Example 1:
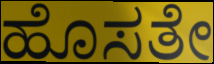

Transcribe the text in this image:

ಹೊಸತೇ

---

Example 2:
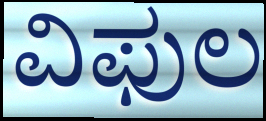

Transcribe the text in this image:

ವಿಫುಲ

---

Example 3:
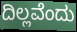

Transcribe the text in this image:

ದಿಲ್ಲವೆಂದು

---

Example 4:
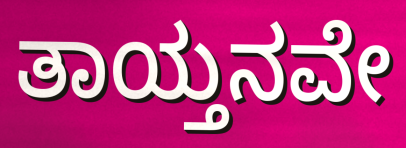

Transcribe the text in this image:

ತಾಯ್ತನವೇ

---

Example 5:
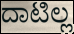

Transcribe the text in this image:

ದಾಟಿಲ್ಲ